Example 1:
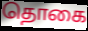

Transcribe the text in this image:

தொகை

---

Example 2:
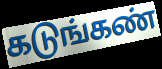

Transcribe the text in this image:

கடுங்கண்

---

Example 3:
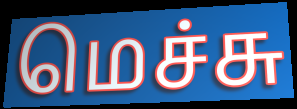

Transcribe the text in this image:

மெச்சு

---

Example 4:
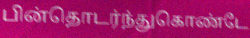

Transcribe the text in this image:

பின்தொடர்ந்துகொண்டே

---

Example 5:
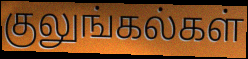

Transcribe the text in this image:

குலுங்கல்கள்